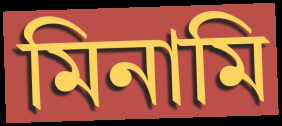
মিনামি